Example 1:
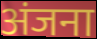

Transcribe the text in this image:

अंजना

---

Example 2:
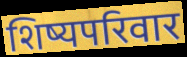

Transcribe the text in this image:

शिष्यपरिवार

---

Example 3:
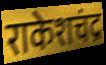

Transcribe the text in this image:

राकेशचंद्र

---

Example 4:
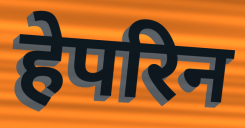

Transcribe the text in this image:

हेपरिन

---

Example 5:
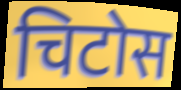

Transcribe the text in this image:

चिटोस